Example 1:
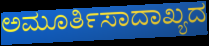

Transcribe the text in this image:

ಅಮೂರ್ತಿಸಾದಾಖ್ಯದ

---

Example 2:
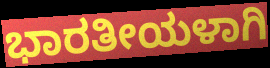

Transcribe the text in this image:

ಭಾರತೀಯಳಾಗಿ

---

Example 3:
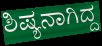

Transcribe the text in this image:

ಶಿಷ್ಯನಾಗಿದ್ದ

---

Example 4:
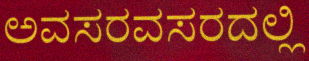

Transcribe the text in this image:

ಅವಸರವಸರದಲ್ಲಿ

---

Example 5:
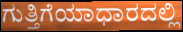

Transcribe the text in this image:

ಗುತ್ತಿಗೆಯಾಧಾರದಲ್ಲಿ